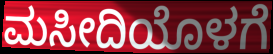
ಮಸೀದಿಯೊಳಗೆ